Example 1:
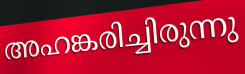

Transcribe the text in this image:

അഹങ്കരിച്ചിരുന്നു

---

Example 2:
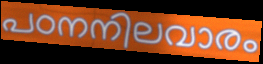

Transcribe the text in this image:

പഠനനിലവാരം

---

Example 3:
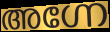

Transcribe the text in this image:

അഗ്നേ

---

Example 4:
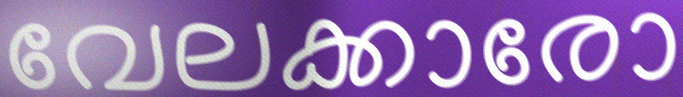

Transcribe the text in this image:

വേലക്കാരോ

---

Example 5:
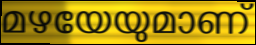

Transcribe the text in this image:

മഴയേയുമാണ്